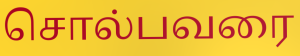
சொல்பவரை